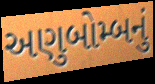
અણુબોમ્બનું